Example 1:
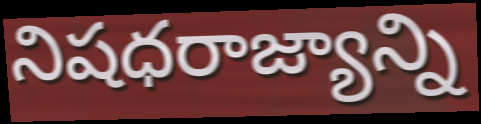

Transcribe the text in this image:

నిషధరాజ్యాన్ని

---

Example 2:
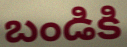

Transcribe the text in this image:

బండికి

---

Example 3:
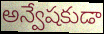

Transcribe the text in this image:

అన్వేషకుడా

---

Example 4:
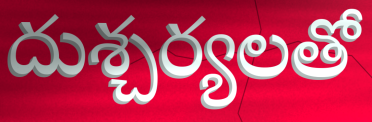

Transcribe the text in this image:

దుశ్చర్యలతో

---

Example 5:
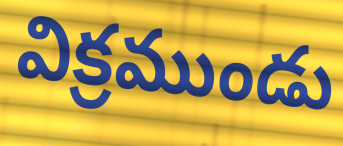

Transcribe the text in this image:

విక్రముండు